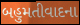
બહુમતીવાદના